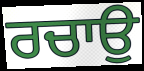
ਰਚਾਉ